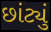
છાંટ્યું